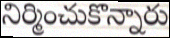
నిర్మించుకొన్నారు